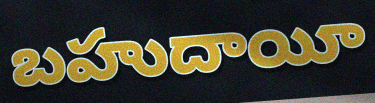
బహుదాయీ